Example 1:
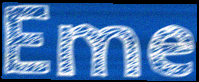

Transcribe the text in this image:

Eme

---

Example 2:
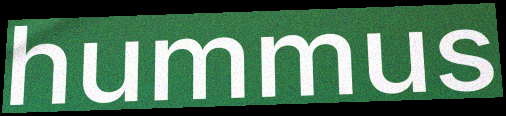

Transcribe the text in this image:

hummus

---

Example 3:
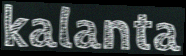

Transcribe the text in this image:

kalanta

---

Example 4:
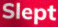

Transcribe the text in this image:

Slept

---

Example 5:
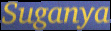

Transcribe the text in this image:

Suganya